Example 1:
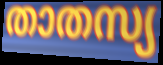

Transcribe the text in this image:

താതസ്യ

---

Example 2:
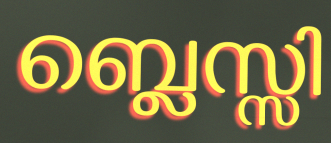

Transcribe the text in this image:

ബ്ലെസ്സി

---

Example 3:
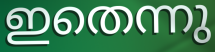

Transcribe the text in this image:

ഇതെന്നു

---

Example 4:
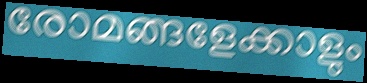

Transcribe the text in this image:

രോമങ്ങളേക്കാളും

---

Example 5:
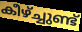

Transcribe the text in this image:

കീഴ്ച്ചുണ്ട്